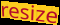
resize